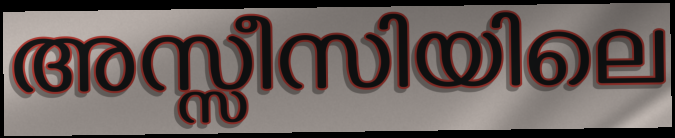
അസ്സീസിയിലെ